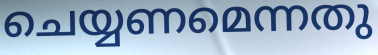
ചെയ്യണമെന്നതു